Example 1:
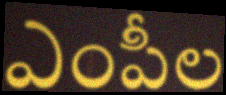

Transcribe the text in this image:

ఎంపీల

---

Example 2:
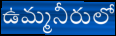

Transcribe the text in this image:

ఉమ్మనీరులో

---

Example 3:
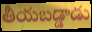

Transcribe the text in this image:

తీయబడ్డాడు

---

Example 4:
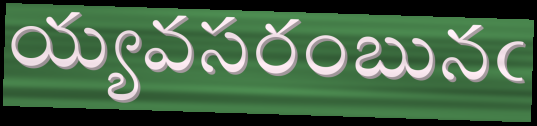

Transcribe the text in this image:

య్యవసరంబునఁ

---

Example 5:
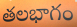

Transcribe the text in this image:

తలభాగం